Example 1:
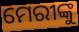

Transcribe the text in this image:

ମେରୀଙ୍କୁ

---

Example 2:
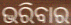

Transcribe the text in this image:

ଭରିବାର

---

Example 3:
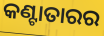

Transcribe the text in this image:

କଣ୍ଟାତାରର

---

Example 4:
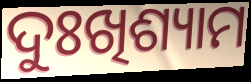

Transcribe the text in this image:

ଦୁଃଖିଶ୍ୟାମ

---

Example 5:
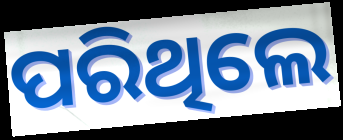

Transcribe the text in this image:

ପରିଥିଲେ